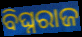
ବିଘ୍ନରାଜ